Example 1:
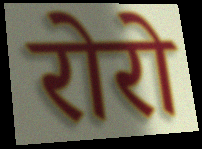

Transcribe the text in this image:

रोरो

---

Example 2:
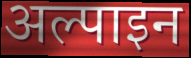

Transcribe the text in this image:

अल्पाइन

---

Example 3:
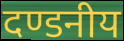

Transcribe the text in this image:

दण्डनीय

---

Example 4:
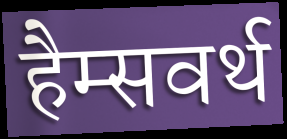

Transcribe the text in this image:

हैम्सवर्थ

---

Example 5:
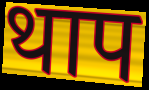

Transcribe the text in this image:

थाप